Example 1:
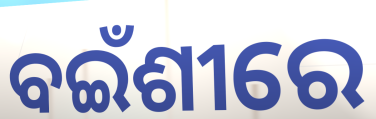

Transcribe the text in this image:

ବଇଁଶୀରେ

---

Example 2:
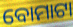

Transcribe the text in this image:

ବୋମାଟା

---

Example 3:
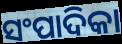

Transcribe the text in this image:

ସଂପାଦିକା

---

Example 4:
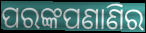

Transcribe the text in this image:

ପରଙ୍କପଣାଣିର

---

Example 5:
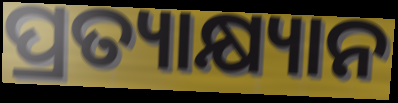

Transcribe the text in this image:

ପ୍ରତ୍ୟାକ୍ଷ୍ୟାନ